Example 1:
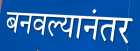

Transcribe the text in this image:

बनवल्यानंतर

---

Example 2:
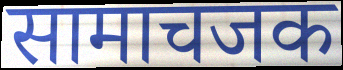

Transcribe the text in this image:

सामाचजक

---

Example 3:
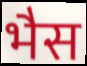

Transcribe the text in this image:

भैस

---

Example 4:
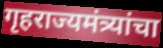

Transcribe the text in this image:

गृहराज्यमंत्र्यांचा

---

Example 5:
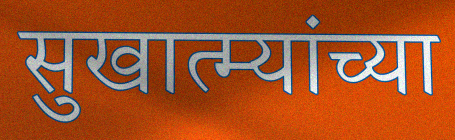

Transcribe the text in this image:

सुखात्म्यांच्या